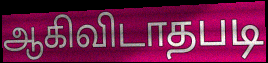
ஆகிவிடாதபடி